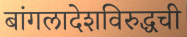
बांगलादेशविरुद्धची